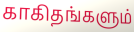
காகிதங்களும்